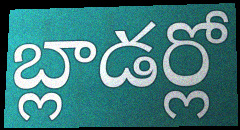
బ్లాడర్లో